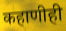
कहाणीही